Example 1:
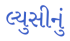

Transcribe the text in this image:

લ્યુસીનું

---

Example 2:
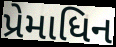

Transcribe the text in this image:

પ્રેમાધિન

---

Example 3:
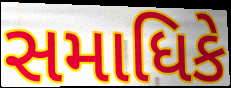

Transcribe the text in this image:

સમાધિકે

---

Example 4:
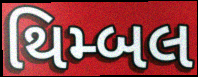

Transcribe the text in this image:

થિમ્બલ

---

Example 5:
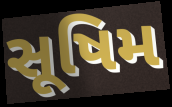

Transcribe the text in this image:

સૂષિમ